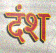
दंश